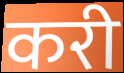
करी